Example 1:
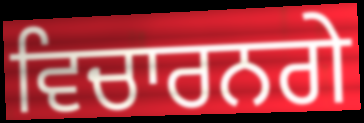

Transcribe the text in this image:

ਵਿਚਾਰਨਗੇ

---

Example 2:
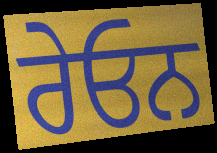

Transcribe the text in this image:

ਰੇਓਨ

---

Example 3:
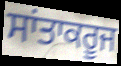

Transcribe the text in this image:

ਸਾਂਤਾਕਰੂਜ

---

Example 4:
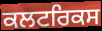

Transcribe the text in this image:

ਕਲਟਰਿਕਸ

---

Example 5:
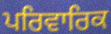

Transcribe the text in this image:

ਪਰਿਵਾਰਿਕ